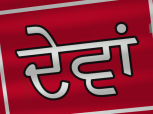
ਦੇਵਾਂ